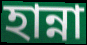
হান্না